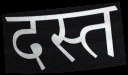
दस्त